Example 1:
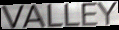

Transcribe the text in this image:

VALLEY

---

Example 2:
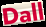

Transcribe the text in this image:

Dall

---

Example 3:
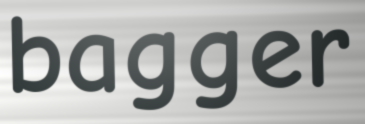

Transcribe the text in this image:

bagger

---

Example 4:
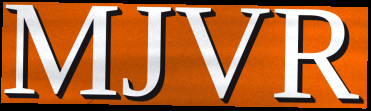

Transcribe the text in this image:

MJVR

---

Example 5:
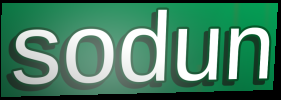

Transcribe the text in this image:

sodun